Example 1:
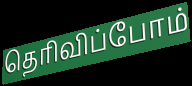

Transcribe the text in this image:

தெரிவிப்போம்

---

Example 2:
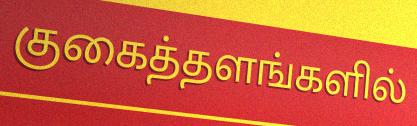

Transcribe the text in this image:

குகைத்தளங்களில்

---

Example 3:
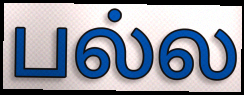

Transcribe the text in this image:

பல்ல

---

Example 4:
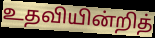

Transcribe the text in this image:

உதவியின்றித்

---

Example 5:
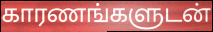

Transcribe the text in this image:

காரணங்களுடன்